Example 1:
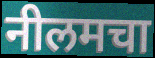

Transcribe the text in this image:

नीलमचा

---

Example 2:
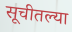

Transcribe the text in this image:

सूचीतल्या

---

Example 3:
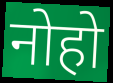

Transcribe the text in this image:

नोहो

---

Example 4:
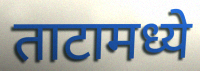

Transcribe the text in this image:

ताटामध्ये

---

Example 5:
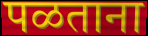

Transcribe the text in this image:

पळताना